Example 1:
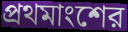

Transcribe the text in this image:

প্রথমাংশের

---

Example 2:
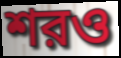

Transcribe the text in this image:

শরও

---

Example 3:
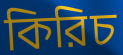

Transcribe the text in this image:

কিরিচ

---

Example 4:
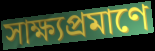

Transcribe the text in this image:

সাক্ষ্যপ্রমাণে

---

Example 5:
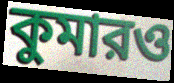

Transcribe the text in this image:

কুমারও